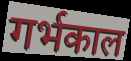
गर्भकाल